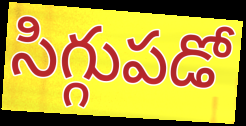
సిగ్గుపడో